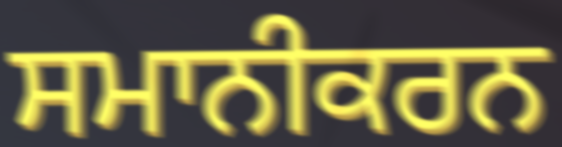
ਸਮਾਨੀਕਰਨ